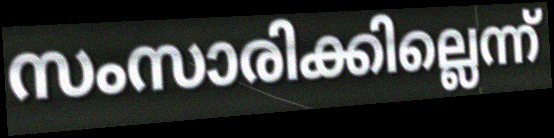
സംസാരിക്കില്ലെന്ന്